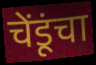
चेंडूंचा